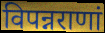
विपन्नराणां